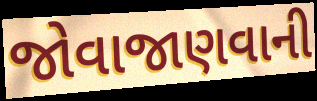
જોવાજાણવાની